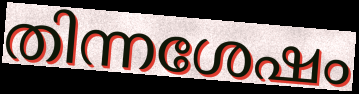
തിന്നശേഷം